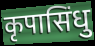
कृपासिंधु